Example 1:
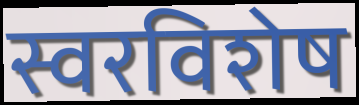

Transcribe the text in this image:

स्वरविशेष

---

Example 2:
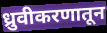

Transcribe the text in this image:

ध्रुवीकरणातून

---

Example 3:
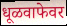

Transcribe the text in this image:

धूळवाफेवर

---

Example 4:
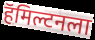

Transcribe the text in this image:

हॅमिल्टनला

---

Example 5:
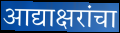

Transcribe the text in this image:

आद्याक्षरांचा